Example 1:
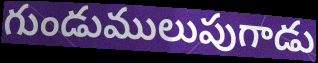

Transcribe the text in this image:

గుండుములుపుగాడు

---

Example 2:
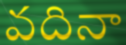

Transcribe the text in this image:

వదినా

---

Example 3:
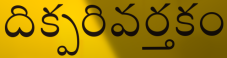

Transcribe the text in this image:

దిక్పరివర్తకం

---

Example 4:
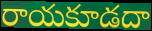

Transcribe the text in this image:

రాయకూడదా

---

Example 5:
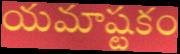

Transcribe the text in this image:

యమాష్టకం